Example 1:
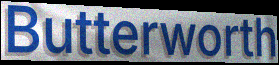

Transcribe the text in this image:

Butterworth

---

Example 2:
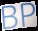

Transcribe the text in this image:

BP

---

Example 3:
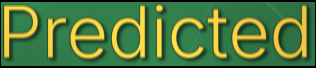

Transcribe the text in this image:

Predicted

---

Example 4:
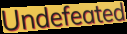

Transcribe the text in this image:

Undefeated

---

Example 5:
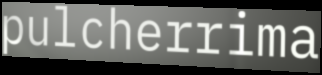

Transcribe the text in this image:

pulcherrima